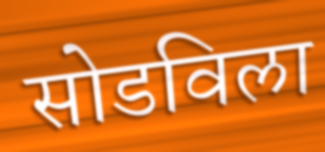
सोडविला